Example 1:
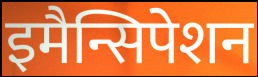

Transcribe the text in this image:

इमैन्सिपेशन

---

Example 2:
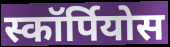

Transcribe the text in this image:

स्कॉर्पियोस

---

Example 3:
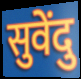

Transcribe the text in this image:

सुवेंदु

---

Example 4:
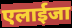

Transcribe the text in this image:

एलाईजा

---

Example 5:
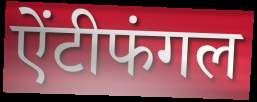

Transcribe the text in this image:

ऐंटीफंगल